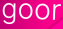
goor